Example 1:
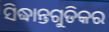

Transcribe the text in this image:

ସିଦ୍ଧାନ୍ତଗୁଡିକର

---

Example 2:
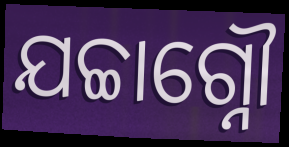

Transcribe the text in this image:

ଯଚ୍ଚାଗ୍ନୌ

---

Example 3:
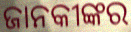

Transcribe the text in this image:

ଜାନକୀଙ୍କର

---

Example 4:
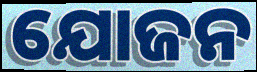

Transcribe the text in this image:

ଯୋଜନ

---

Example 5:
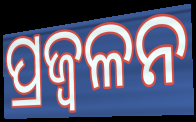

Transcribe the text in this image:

ପ୍ରଜ୍ବଳନ